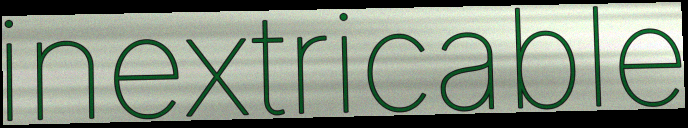
inextricable